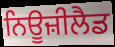
ਨਿਊਜ਼ੀਲੈਡ